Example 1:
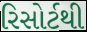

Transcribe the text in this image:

રિસોર્ટથી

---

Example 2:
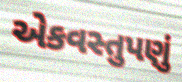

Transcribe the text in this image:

એકવસ્તુપણું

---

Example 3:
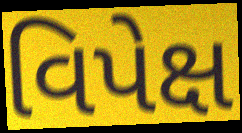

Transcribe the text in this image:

વિપેક્ષ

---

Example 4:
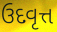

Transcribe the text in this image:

ઉદવૃત્ત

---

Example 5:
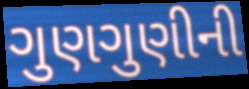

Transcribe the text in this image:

ગુણગુણીની